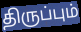
திருப்பும்